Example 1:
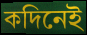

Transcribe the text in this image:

কদিনেই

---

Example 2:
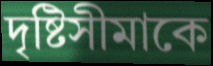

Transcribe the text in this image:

দৃষ্টিসীমাকে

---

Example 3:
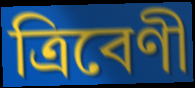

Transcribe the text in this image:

ত্রিবেণী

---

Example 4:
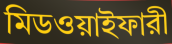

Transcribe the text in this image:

মিডওয়াইফারী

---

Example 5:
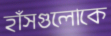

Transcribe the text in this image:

হাঁসগুলোকে